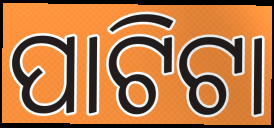
ପାଟିଟା